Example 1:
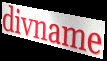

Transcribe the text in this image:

divname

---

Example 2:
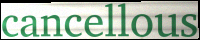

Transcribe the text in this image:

cancellous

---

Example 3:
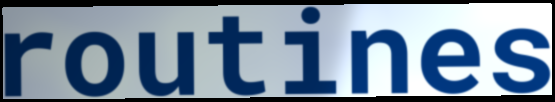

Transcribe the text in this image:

routines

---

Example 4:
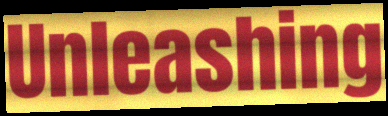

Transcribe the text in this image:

Unleashing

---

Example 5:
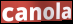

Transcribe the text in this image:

canola